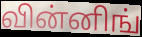
வின்னிங்